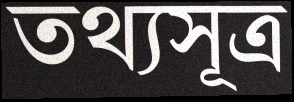
তথ্যসূত্র